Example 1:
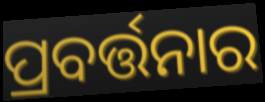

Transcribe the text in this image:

ପ୍ରବର୍ତ୍ତନାର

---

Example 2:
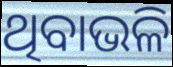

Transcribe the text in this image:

ଥିବାଭଳି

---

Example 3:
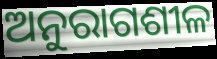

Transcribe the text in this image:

ଅନୁରାଗଶୀଳ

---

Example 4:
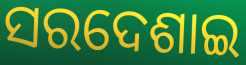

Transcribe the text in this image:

ସରଦେଶାଇ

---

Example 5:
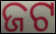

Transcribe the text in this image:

ଜଟ